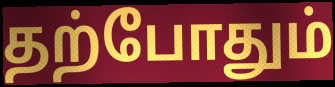
தற்போதும்